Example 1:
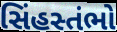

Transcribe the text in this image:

સિંહસ્તંભો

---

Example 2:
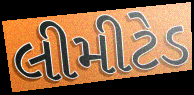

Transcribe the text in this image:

લીમીટેડ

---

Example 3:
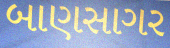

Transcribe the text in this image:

બાણસાગર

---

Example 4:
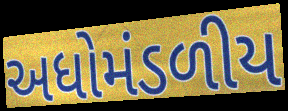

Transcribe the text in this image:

અધોમંડળીય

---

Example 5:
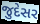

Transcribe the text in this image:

જુદેસર